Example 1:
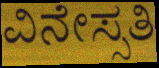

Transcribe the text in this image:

ವಿನೇಸ್ಸತಿ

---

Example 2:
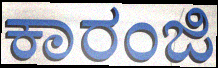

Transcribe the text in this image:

ಕಾರಂಜಿ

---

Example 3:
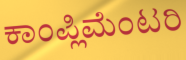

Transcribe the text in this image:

ಕಾಂಪ್ಲಿಮೆಂಟರಿ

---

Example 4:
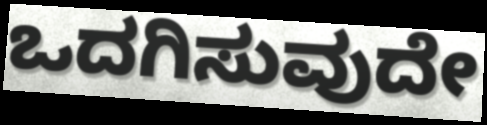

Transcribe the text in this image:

ಒದಗಿಸುವುದೇ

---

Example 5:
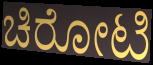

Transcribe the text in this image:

ಚಿರೋಟಿ